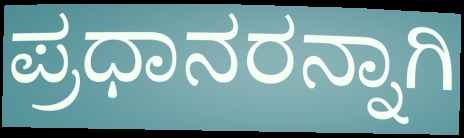
ಪ್ರಧಾನರನ್ನಾಗಿ